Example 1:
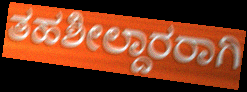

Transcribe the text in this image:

ತಹಶೀಲ್ದಾರರಾಗಿ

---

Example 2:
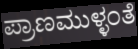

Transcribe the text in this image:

ಪ್ರಾಣಮುಳ್ಳಂತೆ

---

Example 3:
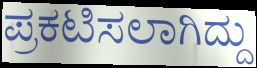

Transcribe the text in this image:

ಪ್ರಕಟಿಸಲಾಗಿದ್ದು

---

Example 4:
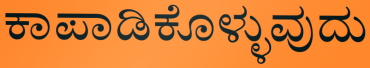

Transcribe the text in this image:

ಕಾಪಾಡಿಕೊಳ್ಳುವುದು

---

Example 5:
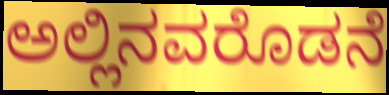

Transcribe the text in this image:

ಅಲ್ಲಿನವರೊಡನೆ